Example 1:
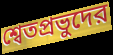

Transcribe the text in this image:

শ্বেতপ্রভুদের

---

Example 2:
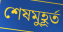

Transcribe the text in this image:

শেষমুহূর্ত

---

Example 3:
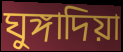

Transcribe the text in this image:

ঘুঙ্গাদিয়া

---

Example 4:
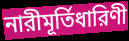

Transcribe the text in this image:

নারীমূর্তিধারিণী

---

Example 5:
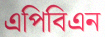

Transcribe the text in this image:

এপিবিএন